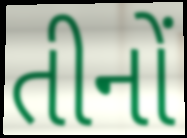
તીનોં